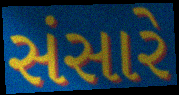
સંસારે